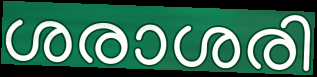
ശരാശരി